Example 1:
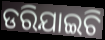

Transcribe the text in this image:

ଡରିଯାଇଚି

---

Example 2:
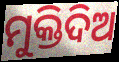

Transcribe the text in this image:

ମୁକ୍ତିଦିଅ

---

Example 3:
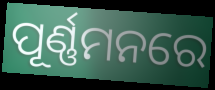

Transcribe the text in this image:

ପୂର୍ଣ୍ଣମନରେ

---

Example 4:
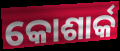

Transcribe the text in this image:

କୋଶାର୍କ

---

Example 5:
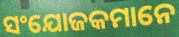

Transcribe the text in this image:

ସଂଯୋଜକମାନେ